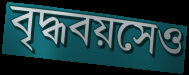
বৃদ্ধবয়সেও